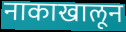
नाकाखालून